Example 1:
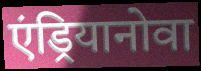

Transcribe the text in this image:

एंड्रियानोवा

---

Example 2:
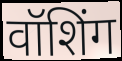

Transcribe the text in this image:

वॉशिंग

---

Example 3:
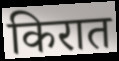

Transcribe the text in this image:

किरात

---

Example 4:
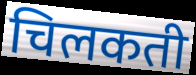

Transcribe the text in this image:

चिलकती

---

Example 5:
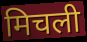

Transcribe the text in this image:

मिचली